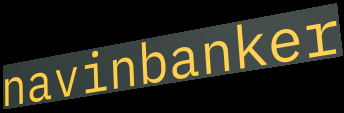
navinbanker